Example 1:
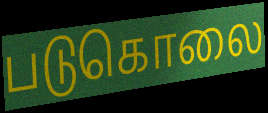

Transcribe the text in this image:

படுகொலை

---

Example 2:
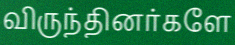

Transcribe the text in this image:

விருந்தினர்களே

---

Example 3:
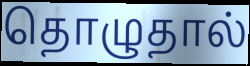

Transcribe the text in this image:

தொழுதால்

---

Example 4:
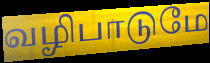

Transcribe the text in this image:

வழிபாடுமே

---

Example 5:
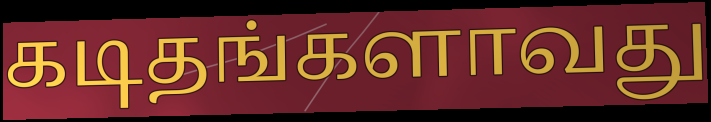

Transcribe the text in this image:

கடிதங்களாவது